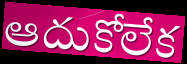
ఆదుకోలేక